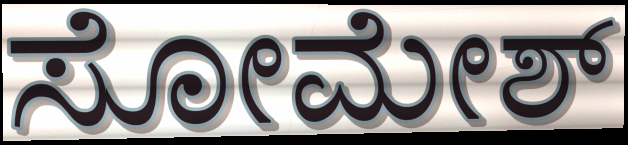
ಸೋಮೇಶ್